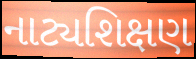
નાટ્યશિક્ષણ